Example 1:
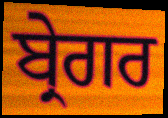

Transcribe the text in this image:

ਬ੍ਰੇਗਰ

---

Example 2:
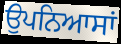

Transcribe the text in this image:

ਉਪਨਿਆਸਾਂ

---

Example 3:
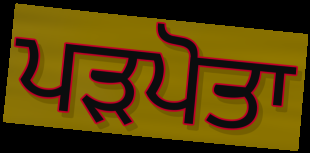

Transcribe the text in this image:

ਪੜਪੋਤਾ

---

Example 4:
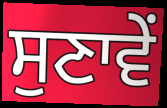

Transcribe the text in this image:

ਸੁਣਾਵੇਂ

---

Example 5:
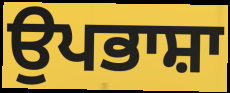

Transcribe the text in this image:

ਉਪਭਾਸ਼ਾ